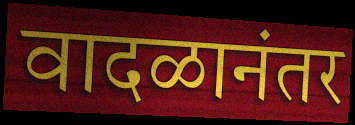
वादळानंतर